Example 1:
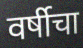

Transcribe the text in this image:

वर्षीचा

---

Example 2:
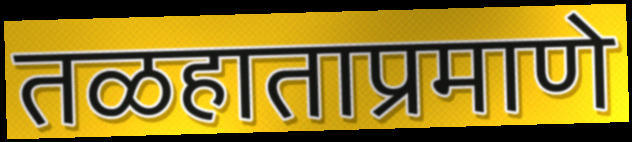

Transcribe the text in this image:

तळहाताप्रमाणे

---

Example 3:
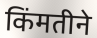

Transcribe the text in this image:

किंमतीने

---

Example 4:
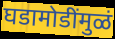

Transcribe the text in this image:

घडामोडींमुळं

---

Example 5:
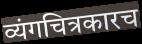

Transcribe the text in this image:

व्यंगचित्रकारच